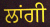
ਲਾਂਗੀ